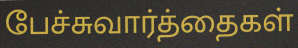
பேச்சுவார்த்தைகள்